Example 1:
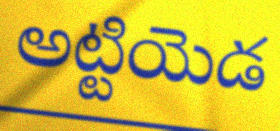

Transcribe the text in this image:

అట్టియెడ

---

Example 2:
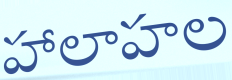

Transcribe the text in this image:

హాలాహల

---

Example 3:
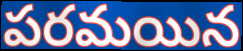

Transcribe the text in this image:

పరమయిన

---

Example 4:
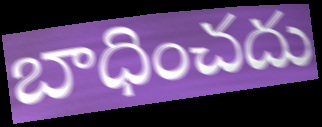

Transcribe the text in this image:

బాధించదు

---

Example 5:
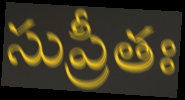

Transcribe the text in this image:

సుప్రీతః